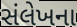
સંલેખના